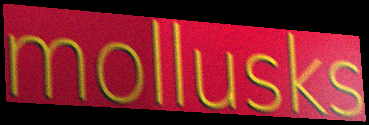
mollusks